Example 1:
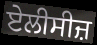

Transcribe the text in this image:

ਏਲੀਸੀਜ਼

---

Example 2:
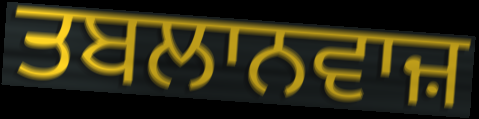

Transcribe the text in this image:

ਤਬਲਾਨਵਾਜ਼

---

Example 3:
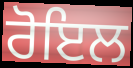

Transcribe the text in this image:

ਰੋਇਲ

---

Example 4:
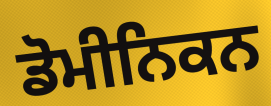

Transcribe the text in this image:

ਡੋਮੀਨਿਕਨ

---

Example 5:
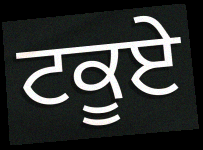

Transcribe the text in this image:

ਟਕੂਏ